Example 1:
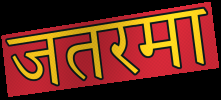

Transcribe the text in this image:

जतरमा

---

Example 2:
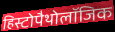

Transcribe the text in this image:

हिस्टोपैथोलॉजिक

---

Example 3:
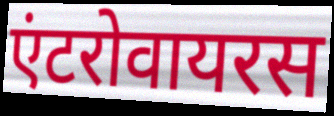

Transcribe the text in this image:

एंटरोवायरस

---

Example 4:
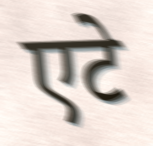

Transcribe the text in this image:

एटे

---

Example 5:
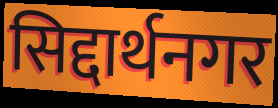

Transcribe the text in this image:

सिद्दार्थनगर